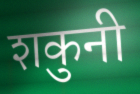
शकुनी